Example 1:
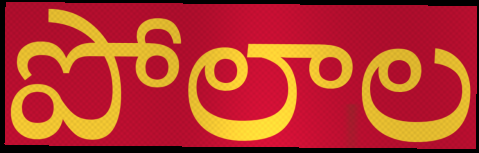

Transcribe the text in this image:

పోలాల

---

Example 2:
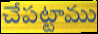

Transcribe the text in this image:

చేపట్టాము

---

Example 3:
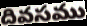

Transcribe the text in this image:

దివసము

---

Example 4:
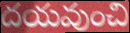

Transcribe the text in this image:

దయవుంచి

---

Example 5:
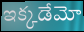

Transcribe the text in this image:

ఇక్కడేమో